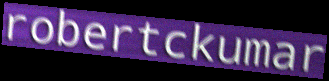
robertckumar